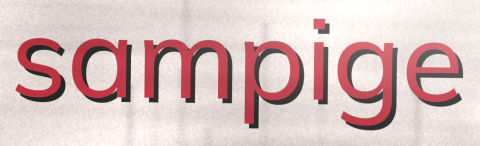
sampige